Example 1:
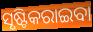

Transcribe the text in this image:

ସୃଷ୍ଟିକରାଇବା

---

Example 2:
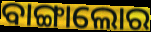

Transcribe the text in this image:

ବାଙ୍ଗାଲୋର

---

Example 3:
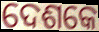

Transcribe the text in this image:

ଦେଶକେ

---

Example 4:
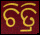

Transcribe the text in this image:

ଚିତ୍ରି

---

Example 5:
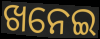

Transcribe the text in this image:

ଖନେଇ